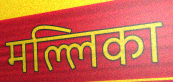
मल्लिका